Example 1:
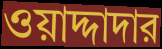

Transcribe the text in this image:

ওয়াদ্দাদার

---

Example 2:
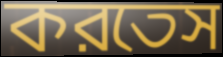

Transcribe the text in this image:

করতেস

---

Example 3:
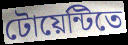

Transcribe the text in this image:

টোয়েন্টিতে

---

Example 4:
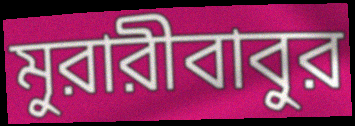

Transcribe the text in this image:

মুরারীবাবুর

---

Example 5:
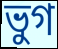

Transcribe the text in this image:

ভুগ